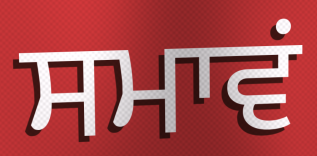
ਸਮਾਵਂ